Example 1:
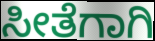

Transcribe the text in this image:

ಸೀತೆಗಾಗಿ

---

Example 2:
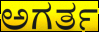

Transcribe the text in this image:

ಅಗರ್ತ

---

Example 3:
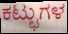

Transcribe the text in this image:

ಕಟ್ಟುಗಳ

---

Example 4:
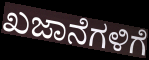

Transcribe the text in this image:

ಖಜಾನೆಗಳಿಗೆ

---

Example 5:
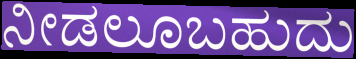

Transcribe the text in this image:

ನೀಡಲೂಬಹುದು